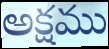
అక్షము